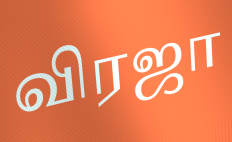
விரஜா